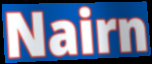
Nairn